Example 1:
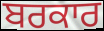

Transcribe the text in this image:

ਬਰਕਾਰ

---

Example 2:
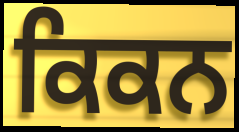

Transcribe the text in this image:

ਕਿਕਨ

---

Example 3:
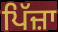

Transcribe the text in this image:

ਪਿੱਜ਼ਾ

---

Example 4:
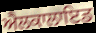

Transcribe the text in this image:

ਐਲਕਾਲਾਇਡ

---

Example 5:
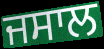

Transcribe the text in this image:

ਜਸਾਲ